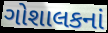
ગોશાલકનાં